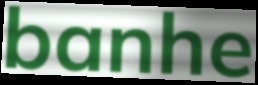
banhe